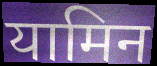
यामिन